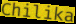
Chilika